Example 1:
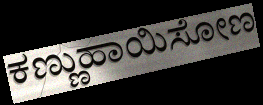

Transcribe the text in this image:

ಕಣ್ಣುಹಾಯಿಸೋಣ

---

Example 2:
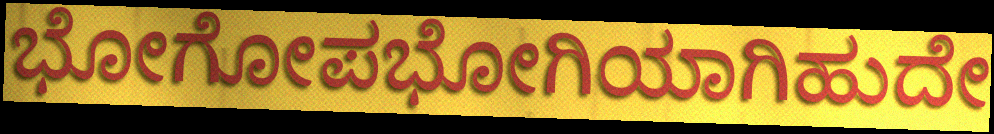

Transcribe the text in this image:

ಭೋಗೋಪಭೋಗಿಯಾಗಿಹುದೇ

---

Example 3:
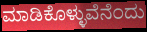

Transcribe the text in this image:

ಮಾಡಿಕೊಳ್ಳುವೆನೆಂದು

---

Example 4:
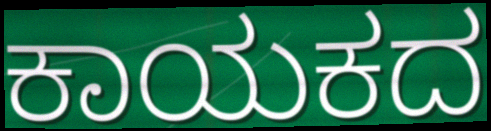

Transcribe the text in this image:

ಕಾಯಕದ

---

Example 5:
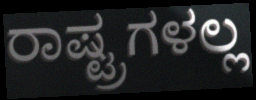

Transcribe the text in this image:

ರಾಷ್ಟ್ರಗಳಲ್ಲ